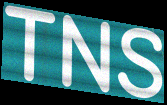
TNS